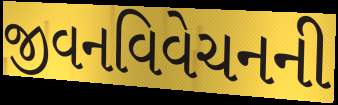
જીવનવિવેચનની